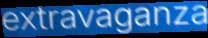
extravaganza